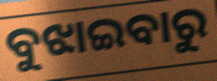
ବୁଝାଇବାରୁ